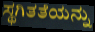
ಸ್ಥಗಿತತೆಯನ್ನು